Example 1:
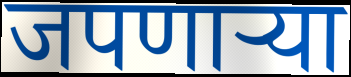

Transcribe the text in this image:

जपणाऱ्या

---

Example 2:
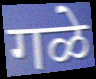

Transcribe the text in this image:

गळे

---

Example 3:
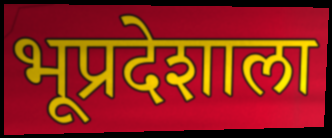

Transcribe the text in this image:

भूप्रदेशाला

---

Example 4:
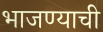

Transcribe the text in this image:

भाजण्याची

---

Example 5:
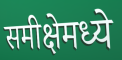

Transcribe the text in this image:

समीक्षेमध्ये